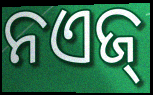
ନଏଜ୍